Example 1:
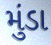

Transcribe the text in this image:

મુંડા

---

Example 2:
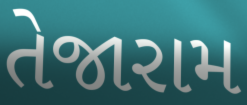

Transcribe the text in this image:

તેજારામ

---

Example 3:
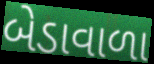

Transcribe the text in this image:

બેડાવાળા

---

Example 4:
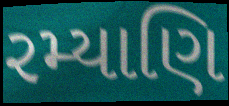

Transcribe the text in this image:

રમ્યાણિ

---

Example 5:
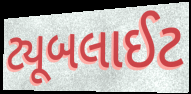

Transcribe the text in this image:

ટ્યૂબલાઈટ